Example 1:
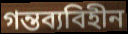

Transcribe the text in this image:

গন্তব্যবিহীন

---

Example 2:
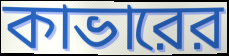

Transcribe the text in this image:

কাভারের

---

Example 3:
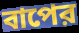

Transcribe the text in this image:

বাপের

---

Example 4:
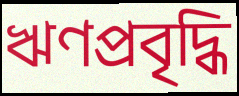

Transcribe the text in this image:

ঋণপ্রবৃদ্ধি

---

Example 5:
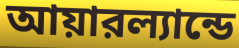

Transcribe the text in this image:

আয়ারল্যান্ডে